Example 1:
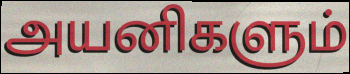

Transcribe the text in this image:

அயனிகளும்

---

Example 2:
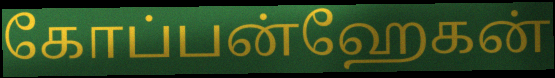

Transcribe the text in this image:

கோப்பன்ஹேகன்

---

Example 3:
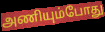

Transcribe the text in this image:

அணியும்போது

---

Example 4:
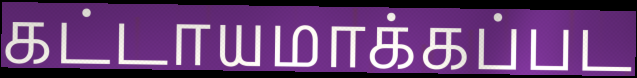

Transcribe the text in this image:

கட்டாயமாக்கப்பட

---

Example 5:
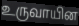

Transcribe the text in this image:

உருவாயின